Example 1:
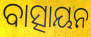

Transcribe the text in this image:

ବାତ୍ସାୟନ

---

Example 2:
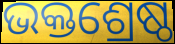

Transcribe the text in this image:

ଭକ୍ତଶ୍ରେଷ୍ଠ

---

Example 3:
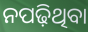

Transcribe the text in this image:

ନପଢ଼ିଥିବା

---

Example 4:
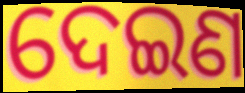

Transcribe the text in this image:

ଦେଇଣ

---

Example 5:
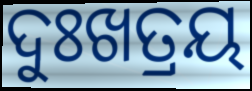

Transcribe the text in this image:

ଦୁଃଖତ୍ରୟ